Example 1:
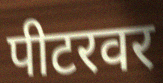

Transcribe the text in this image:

पीटरवर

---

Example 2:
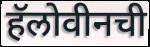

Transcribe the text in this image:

हॅलोवीनची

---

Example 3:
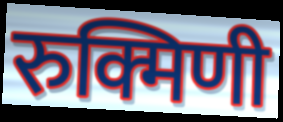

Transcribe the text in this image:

रुक्मिणी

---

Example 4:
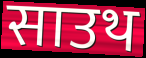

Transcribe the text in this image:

साउथ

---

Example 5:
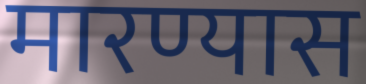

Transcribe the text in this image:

मारण्यास